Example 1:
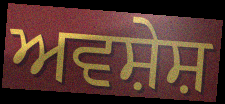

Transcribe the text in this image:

ਅਵਸ਼ੇਸ਼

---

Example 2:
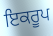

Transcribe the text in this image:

ਇਕਰੂਪ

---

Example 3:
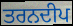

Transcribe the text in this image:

ਤਰਨਦੀਪ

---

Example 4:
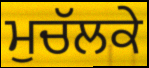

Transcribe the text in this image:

ਮੁਚੱਲਕੇ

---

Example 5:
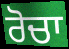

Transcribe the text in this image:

ਰੋਚਾ